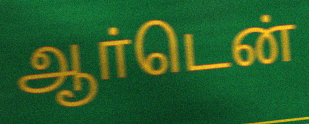
ஆர்டென்